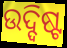
ଉଦ୍ଦିଷ୍ଟ